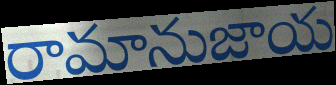
రామానుజాయ